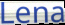
Lena